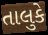
તાલુકે